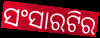
ସଂସାରଟିର